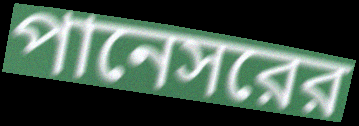
পানেসরের